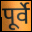
पूर्वे